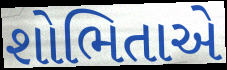
શોભિતાએ